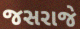
જસરાજે